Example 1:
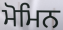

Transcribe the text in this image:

ਮੋਮਿਨ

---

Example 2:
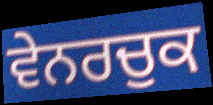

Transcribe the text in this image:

ਵੇਨਰਚੁਕ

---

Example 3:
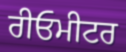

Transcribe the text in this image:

ਰੀਓਮੀਟਰ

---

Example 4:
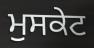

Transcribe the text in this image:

ਮੁਸਕੇਟ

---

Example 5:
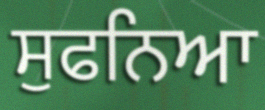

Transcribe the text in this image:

ਸੁਫਨਿਆ